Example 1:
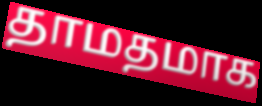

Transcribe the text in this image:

தாமதமாக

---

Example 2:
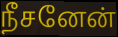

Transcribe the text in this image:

நீசனேன்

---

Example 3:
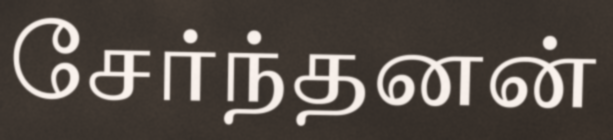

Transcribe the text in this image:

சேர்ந்தனன்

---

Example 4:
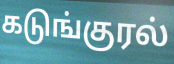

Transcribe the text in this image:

கடுங்குரல்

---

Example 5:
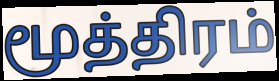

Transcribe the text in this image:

மூத்திரம்